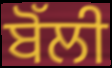
ਬੋੱਲੀ